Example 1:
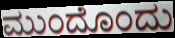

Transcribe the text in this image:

ಮುಂದೊಂದು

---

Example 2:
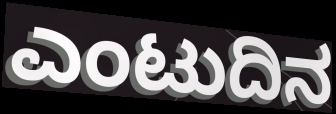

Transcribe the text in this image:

ಎಂಟುದಿನ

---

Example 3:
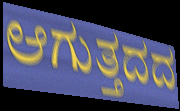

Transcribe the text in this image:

ಆಗುತ್ತದದ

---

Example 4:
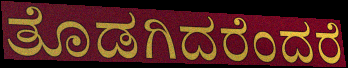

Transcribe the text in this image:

ತೊಡಗಿದರೆಂದರೆ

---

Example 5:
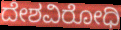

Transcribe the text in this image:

ದೇಶವಿರೋಧಿ